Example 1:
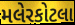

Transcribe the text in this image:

મલેરકોટલા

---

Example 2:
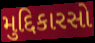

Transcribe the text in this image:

મુદ્દિકારસો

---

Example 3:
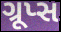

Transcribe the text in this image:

ગ્રૂપ્સ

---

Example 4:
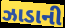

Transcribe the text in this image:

ઝાડાની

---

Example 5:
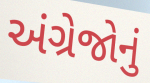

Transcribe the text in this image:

અંગ્રેજોનું